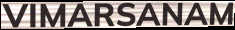
VIMARSANAM